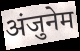
अंजुनेम